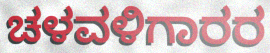
ಚಳವಳಿಗಾರರ